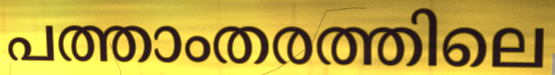
പത്താംതരത്തിലെ